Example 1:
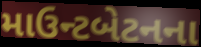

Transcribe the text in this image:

માઉન્ટબેટનના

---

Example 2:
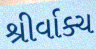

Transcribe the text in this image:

શ્રીર્વાક્ચ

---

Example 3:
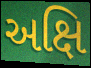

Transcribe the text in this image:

અક્ષિ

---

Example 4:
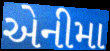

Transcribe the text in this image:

એનીમા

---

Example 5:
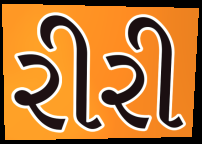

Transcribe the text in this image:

રીરી